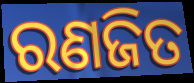
ରଣଜିତ